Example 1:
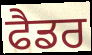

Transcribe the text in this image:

ਫੈਡਰ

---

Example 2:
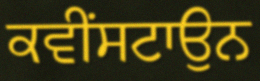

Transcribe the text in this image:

ਕਵੀਂਸਟਾਉਨ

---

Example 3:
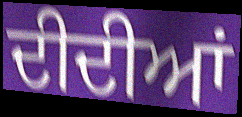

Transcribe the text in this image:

ਦੀਦੀਆਂ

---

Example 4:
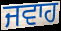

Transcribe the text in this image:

ਜਵਾਹ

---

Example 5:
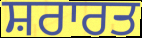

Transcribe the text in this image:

ਸ਼ਰਾਰਤ